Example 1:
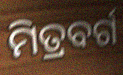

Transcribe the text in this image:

ମିତ୍ରବର୍ଗ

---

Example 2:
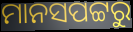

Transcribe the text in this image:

ମାନସପଟ୍ଟରୁ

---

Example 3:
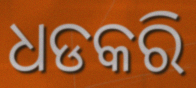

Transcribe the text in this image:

ଧଡକରି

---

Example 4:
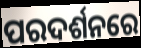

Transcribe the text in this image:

ପରଦର୍ଶନରେ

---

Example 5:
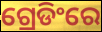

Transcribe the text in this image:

ଗ୍ରେଡିଂରେ